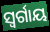
ସ୍ବର୍ଗାୟ